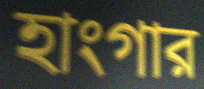
হাংগার